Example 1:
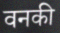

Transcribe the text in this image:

वनकी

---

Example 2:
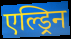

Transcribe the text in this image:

एल्ड्रिन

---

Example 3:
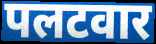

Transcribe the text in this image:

पलटवार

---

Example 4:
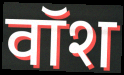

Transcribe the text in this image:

वॉश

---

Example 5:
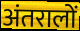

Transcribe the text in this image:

अंतरालों